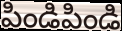
పిండిపిండి